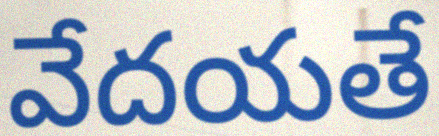
వేదయతే